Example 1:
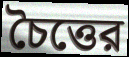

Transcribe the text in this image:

চৈত্তের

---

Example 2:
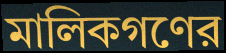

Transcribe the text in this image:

মালিকগণের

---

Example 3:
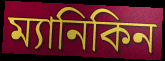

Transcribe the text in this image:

ম্যানিকিন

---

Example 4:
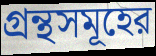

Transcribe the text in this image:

গ্রন্থসমূহের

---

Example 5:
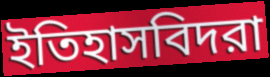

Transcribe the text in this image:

ইতিহাসবিদরা